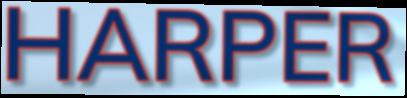
HARPER